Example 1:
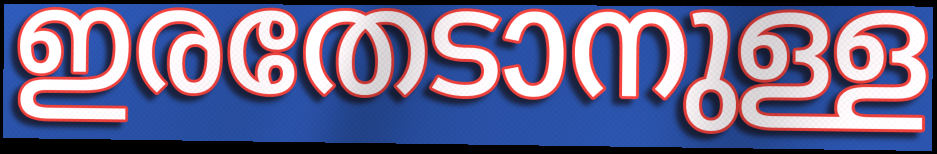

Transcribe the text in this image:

ഇരതേടാനുള്ള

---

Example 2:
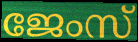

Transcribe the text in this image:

ജേംസ്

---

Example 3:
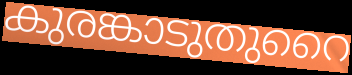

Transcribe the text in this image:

കുരങ്കാടുതുറൈ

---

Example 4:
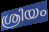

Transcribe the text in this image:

ശ്രിയം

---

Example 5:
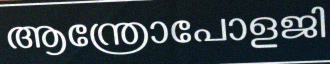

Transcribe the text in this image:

ആന്ത്രോപോളജി